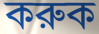
করুক